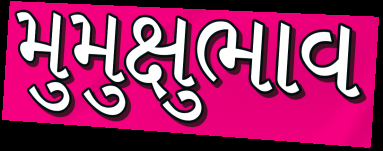
મુમુક્ષુભાવ